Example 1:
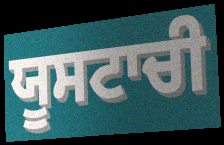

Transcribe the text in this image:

ਯੂਸਟਾਚੀ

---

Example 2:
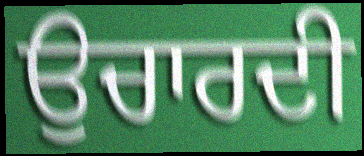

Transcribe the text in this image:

ਉਚਾਰਦੀ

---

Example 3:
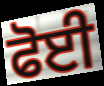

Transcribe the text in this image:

ਫੋਈ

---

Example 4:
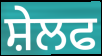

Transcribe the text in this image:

ਸ਼ੇਲਫ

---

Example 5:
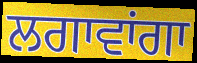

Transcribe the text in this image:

ਲਗਾਵਾਂਗਾ